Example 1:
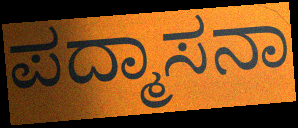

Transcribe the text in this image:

ಪದ್ಮಾಸನಾ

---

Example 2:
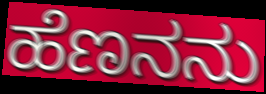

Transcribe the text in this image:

ಹೆಣನನು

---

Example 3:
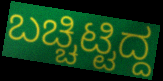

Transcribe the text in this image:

ಬಚ್ಚಿಟ್ಟಿದ್ದ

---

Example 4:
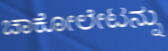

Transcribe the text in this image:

ಚಾಕೋಲೇಟನ್ನು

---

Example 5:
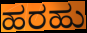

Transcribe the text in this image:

ಹರಹು